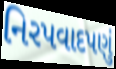
નિરપવાદપણું